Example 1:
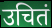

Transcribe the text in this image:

उचितं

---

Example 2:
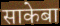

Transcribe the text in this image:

साकेबा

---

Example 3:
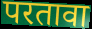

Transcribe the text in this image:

परतावा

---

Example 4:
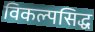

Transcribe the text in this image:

विकल्पसिद्ध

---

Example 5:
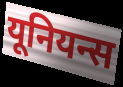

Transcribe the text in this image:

यूनियन्स